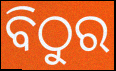
ବିଠୁର